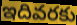
ఇదివరకు